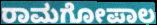
ರಾಮಗೋಪಾಲ